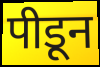
पीडून